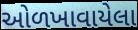
ઓળખાવાયેલા